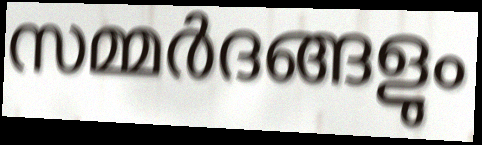
സമ്മർദങ്ങളും